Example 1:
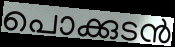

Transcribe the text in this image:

പൊക്കുടൻ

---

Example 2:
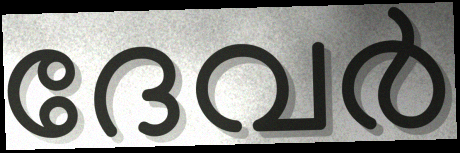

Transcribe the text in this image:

ദേവർ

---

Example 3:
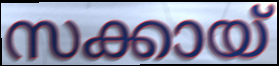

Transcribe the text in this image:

സക്കായ്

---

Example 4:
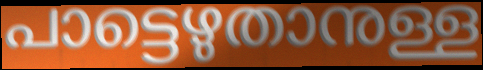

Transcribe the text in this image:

പാട്ടെഴുതാനുള്ള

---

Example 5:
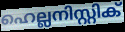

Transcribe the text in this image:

ഹെല്ലനിസ്റ്റിക്